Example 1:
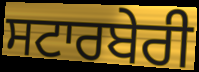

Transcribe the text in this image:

ਸਟਾਰਬੇਰੀ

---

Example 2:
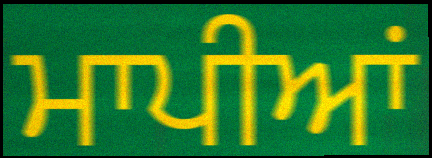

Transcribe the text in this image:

ਮਾਪੀਆਂ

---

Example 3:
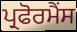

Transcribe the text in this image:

ਪ੍ਰਫੋਰਮੈਂਸ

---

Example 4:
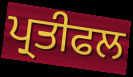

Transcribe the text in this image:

ਪ੍ਰਤੀਫਲ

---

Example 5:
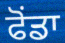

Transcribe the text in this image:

ਫੋਂਡਾ